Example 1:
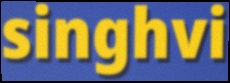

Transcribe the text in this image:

singhvi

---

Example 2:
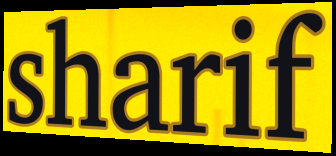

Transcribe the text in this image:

sharif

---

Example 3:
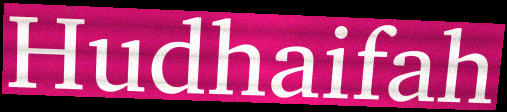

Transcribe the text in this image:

Hudhaifah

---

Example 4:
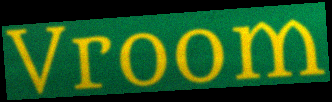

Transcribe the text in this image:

Vroom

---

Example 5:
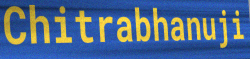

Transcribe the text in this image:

Chitrabhanuji